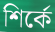
শির্কে